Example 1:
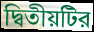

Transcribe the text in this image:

দ্বিতীয়টির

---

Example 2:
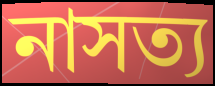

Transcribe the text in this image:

নাসত্য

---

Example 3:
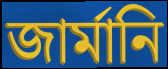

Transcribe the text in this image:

জার্মানি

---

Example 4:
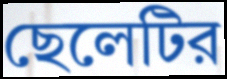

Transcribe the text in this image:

ছেলেটির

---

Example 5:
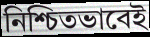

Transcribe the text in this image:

নিশ্চিতভাবেই